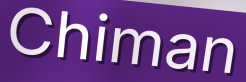
Chiman